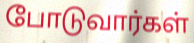
போடுவார்கள்